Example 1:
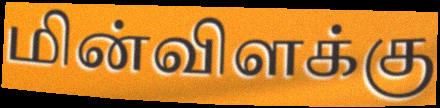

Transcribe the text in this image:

மின்விளக்கு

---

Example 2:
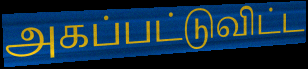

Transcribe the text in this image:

அகப்பட்டுவிட்ட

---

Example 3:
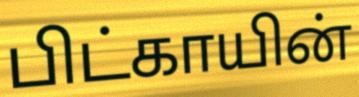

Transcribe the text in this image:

பிட்காயின்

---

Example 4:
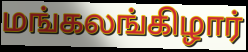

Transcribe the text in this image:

மங்கலங்கிழார்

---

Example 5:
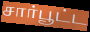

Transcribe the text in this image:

சார்பூட்ட